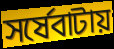
সর্ষেবাটায়